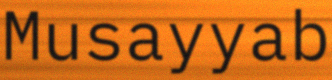
Musayyab